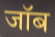
जॉब